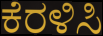
ಕೆರಳಿಸಿ